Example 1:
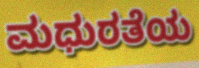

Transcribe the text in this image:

ಮಧುರತೆಯ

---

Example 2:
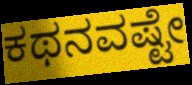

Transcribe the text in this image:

ಕಥನವಷ್ಟೇ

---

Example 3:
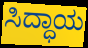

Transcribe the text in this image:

ಸಿದ್ಧಾಯ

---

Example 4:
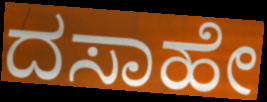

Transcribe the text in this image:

ದಸಾಹೇ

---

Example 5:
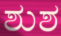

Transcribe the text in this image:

ಶುಶ